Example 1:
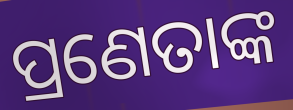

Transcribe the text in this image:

ପ୍ରଣେତାଙ୍କ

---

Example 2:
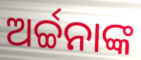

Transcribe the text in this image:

ଅର୍ଚ୍ଚନାଙ୍କ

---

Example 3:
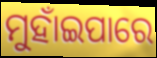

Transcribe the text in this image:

ମୁହାଁଇପାରେ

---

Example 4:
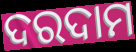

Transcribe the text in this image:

ଦରଦାମ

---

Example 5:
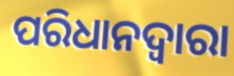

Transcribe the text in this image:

ପରିଧାନଦ୍ୱାରା